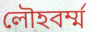
লৌহবর্ম্ম